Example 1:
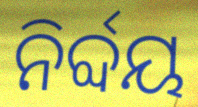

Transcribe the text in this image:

ନିର୍ବ୍ଦୟ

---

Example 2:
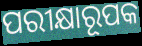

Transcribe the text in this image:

ପରୀକ୍ଷାରୂପକ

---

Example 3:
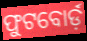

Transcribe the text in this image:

ଫୁଟବୋର୍ଡ଼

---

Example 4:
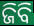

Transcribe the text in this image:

ଜିବି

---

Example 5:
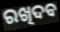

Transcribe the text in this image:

ରଖିଦବ